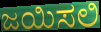
ಜಯಿಸಲಿ